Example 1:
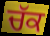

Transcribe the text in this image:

ਚੱਕ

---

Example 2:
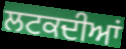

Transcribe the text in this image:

ਲਟਕਦੀਆਂ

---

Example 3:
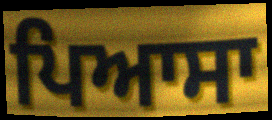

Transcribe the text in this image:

ਪਿਆਸਾ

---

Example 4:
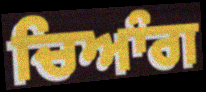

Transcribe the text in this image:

ਚਿਆੰਗ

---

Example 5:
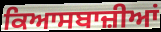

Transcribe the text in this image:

ਕਿਆਸਬਾਜ਼ੀਆਂ